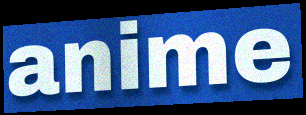
anime